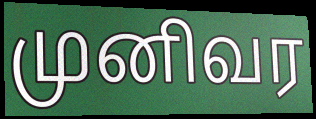
முனிவர